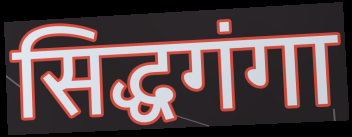
सिद्धगंगा